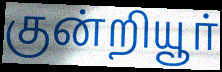
குன்றியூர்